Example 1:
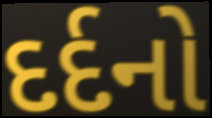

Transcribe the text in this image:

દર્દનો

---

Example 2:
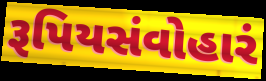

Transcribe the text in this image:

રૂપિયસંવોહારં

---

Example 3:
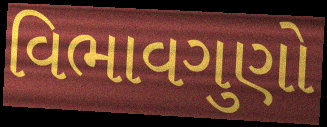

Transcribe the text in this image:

વિભાવગુણો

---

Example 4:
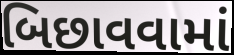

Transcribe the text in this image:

બિછાવવામાં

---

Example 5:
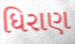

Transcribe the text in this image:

ધિરાણ